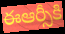
ఈఆర్సీకి